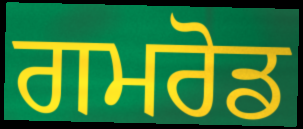
ਗਮਰੋਡ